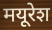
मयूरेश